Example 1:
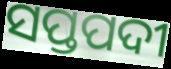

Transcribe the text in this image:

ସପ୍ତପଦୀ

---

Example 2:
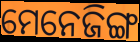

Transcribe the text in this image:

ମେନେଜିଙ୍ଗ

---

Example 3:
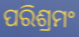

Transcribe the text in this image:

ପରିଶ୍ରମଂ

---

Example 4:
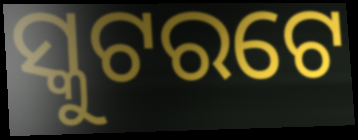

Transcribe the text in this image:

ସ୍କୁଟରଟେ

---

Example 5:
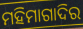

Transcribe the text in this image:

ମହିମାଗାଦିର